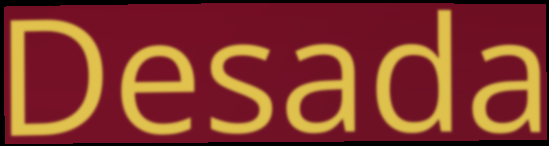
Desada